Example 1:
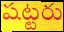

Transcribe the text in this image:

షట్టరు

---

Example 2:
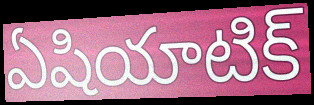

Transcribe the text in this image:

ఏషియాటిక్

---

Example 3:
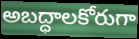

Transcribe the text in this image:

అబద్ధాలకోరుగా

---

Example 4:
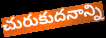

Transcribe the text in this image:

చురుకుదనాన్ని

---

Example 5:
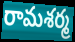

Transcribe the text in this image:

రామశర్మ